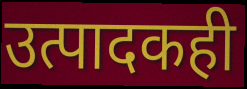
उत्पादकही